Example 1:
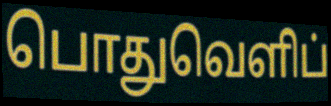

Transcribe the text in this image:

பொதுவெளிப்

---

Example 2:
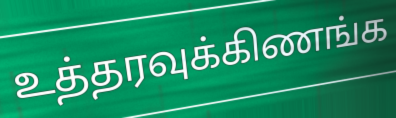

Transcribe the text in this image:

உத்தரவுக்கிணங்க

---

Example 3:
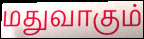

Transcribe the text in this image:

மதுவாகும்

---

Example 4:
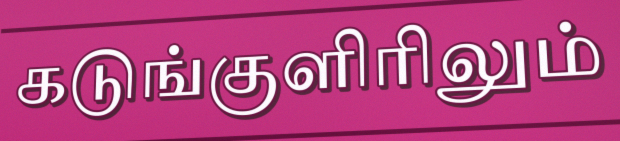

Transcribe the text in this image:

கடுங்குளிரிலும்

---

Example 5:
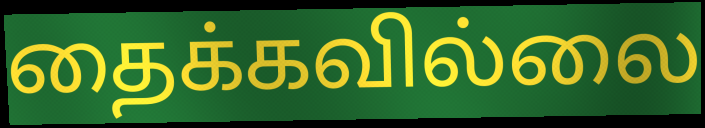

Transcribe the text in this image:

தைக்கவில்லை